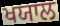
ਖਯਾਲ